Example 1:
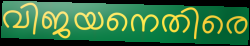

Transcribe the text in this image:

വിജയനെതിരെ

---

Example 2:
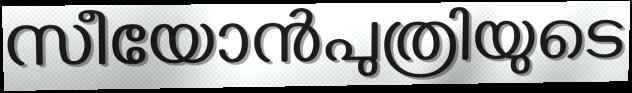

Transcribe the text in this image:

സീയോൻപുത്രിയുടെ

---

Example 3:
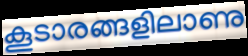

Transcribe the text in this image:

കൂടാരങ്ങളിലാണു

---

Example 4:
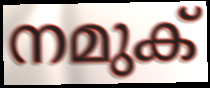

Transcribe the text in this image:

നമുക്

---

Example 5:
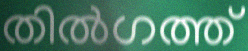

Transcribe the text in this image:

തിൽഗത്ത്